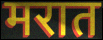
मरात